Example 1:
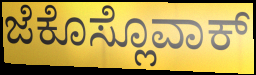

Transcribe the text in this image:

ಜೆಕೊಸ್ಲೊವಾಕ್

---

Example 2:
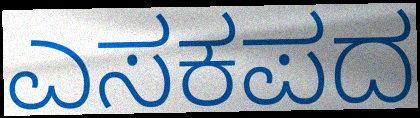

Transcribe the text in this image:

ಎಸಕಪದ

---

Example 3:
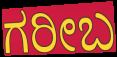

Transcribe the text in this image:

ಗರೀಬ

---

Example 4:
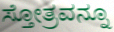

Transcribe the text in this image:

ಸ್ತೋತ್ರವನ್ನೂ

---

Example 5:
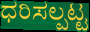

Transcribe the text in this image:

ಧರಿಸಲ್ಪಟ್ಟ